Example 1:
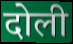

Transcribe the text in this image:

दोली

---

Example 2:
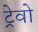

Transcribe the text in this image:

ट्रेवो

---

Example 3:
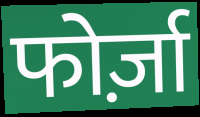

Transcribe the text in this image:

फोर्ज़ा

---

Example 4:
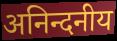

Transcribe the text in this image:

अनिन्दनीय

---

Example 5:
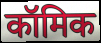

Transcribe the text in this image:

कॉमिक